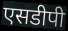
एसडीपी